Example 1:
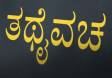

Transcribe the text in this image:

ತಥೈವಚ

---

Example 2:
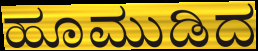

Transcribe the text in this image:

ಹೂಮುಡಿದ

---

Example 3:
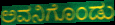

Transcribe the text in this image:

ಅವನಿಗೊಂಡು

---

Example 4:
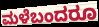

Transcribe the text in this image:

ಮಳೆಬಂದರೂ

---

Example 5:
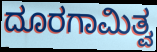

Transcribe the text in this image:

ದೂರಗಾಮಿತ್ವ